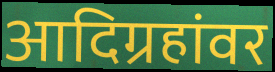
आदिग्रहांवर